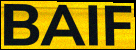
BAIF